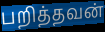
பறித்தவன்